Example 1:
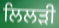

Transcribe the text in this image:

ਲਿਲੜੀ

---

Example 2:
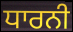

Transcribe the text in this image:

ਧਾਰਨੀ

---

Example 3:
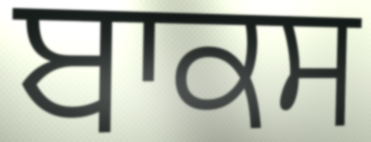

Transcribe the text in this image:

ਬਾਕਸ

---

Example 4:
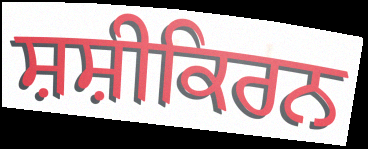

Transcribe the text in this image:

ਸ਼ਸ਼ੀਕਿਰਨ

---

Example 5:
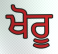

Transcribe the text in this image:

ਖੋਰੂ